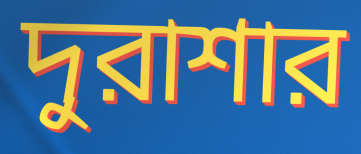
দুরাশার